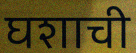
घशाची